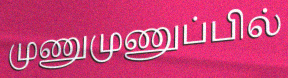
முணுமுணுப்பில்